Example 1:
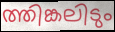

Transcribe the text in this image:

ത്തിങ്കലിടും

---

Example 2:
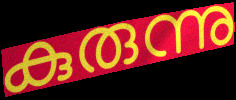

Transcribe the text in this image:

കുരുന്നു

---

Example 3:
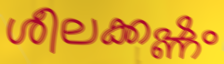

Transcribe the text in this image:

ശീലക്കഷ്ണം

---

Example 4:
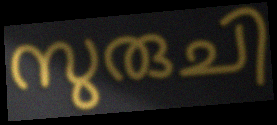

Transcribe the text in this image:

സുരുചി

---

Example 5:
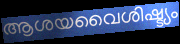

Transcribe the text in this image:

ആശയവൈശിഷ്ട്യം